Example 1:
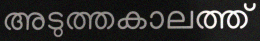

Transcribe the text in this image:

അടുത്തകാലത്ത്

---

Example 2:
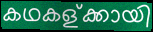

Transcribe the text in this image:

കഥകള്ക്കായി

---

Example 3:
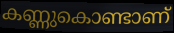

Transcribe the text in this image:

കണ്ണുകൊണ്ടാണ്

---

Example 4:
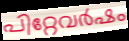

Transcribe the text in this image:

പിറ്റേവർഷം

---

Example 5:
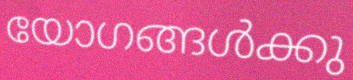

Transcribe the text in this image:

യോഗങ്ങൾക്കു